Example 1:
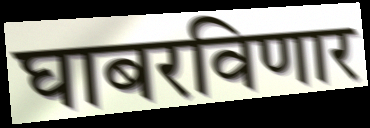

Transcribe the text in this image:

घाबरविणार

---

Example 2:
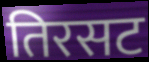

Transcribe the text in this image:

तिरसट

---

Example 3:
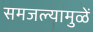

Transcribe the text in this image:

समजल्यामुळें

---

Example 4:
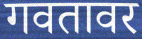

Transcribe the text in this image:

गवतावर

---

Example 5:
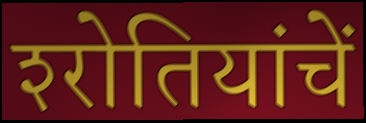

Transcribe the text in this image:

श्रोतियांचें